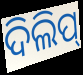
ଦିଲିପ୍